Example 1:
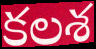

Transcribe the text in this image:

కలశ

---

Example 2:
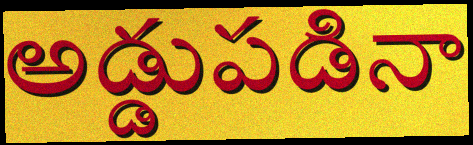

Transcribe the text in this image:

అడ్డుపడినా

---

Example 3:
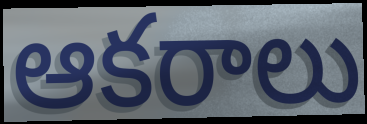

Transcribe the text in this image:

ఆకరాలు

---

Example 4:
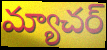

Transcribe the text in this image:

మ్యాచర్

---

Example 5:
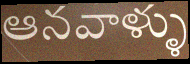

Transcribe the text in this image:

ఆనవాళ్ళు